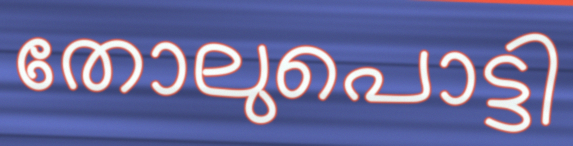
തോലുപൊട്ടി